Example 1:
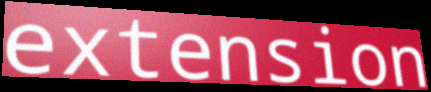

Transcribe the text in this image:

extension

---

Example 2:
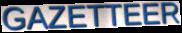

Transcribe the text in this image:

GAZETTEER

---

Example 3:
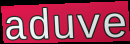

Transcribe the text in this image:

aduve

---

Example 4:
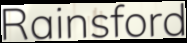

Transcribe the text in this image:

Rainsford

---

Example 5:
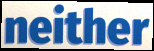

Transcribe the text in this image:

neither